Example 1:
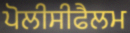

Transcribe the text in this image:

ਪੋਲੀਸੀਫੈਲਮ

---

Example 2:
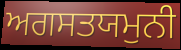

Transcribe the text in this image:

ਅਗਸਤਯਮੁਨੀ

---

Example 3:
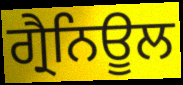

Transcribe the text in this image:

ਗ੍ਰੈਨਿਊਲ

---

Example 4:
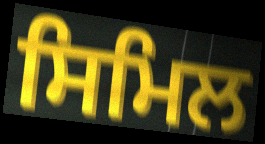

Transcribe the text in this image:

ਸਿਮਿਲ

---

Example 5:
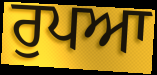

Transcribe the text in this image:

ਰੁਪਆ